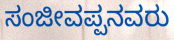
ಸಂಜೀವಪ್ಪನವರು